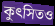
কুৎসিতও